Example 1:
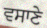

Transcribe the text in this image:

ਵਸਾਣੇ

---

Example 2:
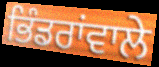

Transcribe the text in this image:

ਭਿੰਡਰਾਂਵਾਲੇ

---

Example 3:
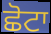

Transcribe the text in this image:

ਛੋਟਾ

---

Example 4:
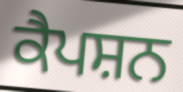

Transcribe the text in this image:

ਕੈਪਸ਼ਨ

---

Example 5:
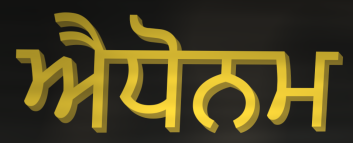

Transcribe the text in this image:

ਐਧੋਨਮ